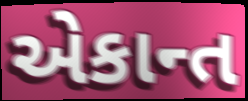
એકાન્ત